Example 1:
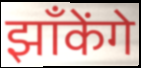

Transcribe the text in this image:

झाँकेंगे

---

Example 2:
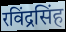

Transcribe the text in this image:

रविंद्रसिंह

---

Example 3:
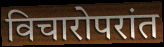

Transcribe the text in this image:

विचारोपरांत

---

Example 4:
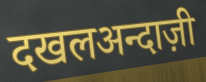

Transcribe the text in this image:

दखलअन्दाज़ी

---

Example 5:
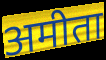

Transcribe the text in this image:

अमीता